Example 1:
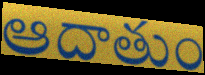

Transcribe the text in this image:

ఆదాతుం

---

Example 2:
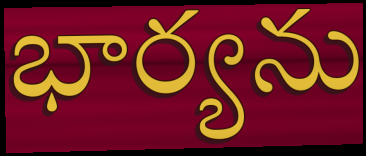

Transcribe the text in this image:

భార్యను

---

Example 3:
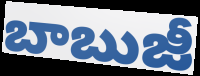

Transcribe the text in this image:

బాబుజీ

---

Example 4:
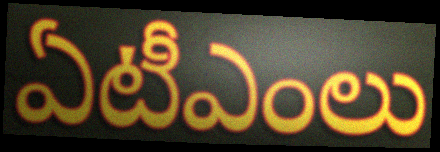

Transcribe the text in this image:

ఏటీఎంలు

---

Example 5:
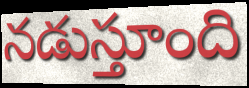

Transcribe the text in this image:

నడుస్తూంది